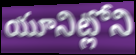
యూనిట్లోని